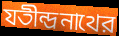
যতীন্দ্রনাথের